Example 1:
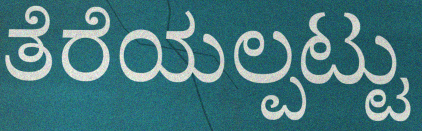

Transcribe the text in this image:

ತೆರೆಯಲ್ಪಟ್ಟು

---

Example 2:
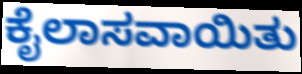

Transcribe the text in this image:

ಕೈಲಾಸವಾಯಿತು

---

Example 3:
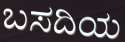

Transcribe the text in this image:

ಬಸದಿಯ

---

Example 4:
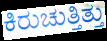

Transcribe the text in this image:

ಕಿರುಚುತ್ತಿತ್ತು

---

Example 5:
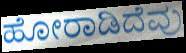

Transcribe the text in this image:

ಹೋರಾಡಿದೆವು